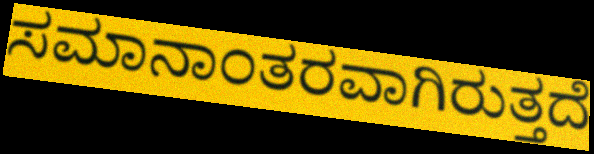
ಸಮಾನಾಂತರವಾಗಿರುತ್ತದೆ